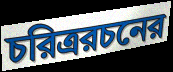
চরিত্ররচনের